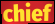
chief